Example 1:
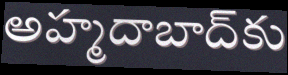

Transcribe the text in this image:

అహ్మదాబాద్‌కు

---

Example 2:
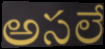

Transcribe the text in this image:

అసలే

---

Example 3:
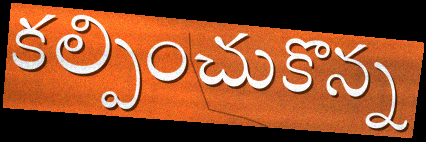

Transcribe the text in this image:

కల్పించుకొన్న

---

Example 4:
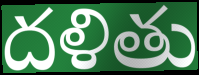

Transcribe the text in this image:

దళితు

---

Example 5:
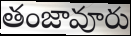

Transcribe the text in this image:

తంజావూరు